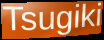
Tsugiki